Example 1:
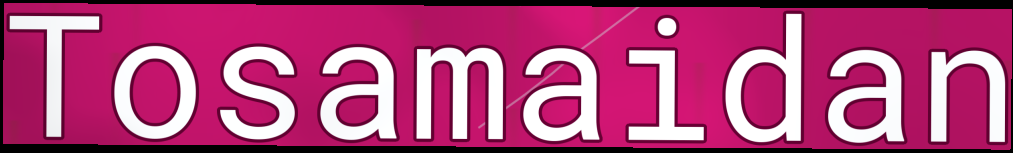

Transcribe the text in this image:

Tosamaidan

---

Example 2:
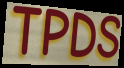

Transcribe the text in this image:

TPDS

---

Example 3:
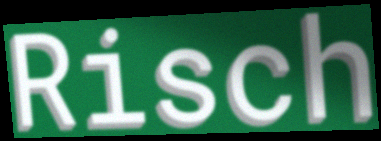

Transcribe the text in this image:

Risch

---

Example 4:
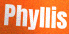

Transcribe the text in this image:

Phyllis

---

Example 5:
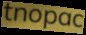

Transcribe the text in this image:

tnopac